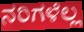
ನರಿಗಳೆಲ್ಲ